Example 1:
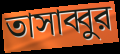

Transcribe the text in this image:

তাসাব্বুর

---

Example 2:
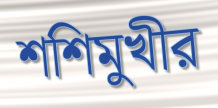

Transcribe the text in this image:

শশিমুখীর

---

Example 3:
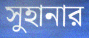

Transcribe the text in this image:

সুহানার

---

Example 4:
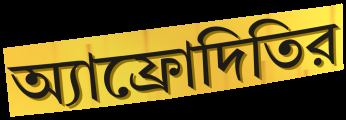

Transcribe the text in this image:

অ্যাফ্রোদিতির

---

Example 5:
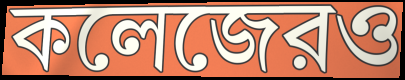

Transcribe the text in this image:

কলেজেরও